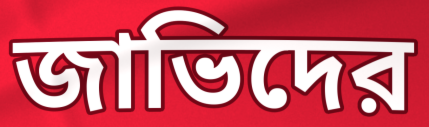
জাভিদের